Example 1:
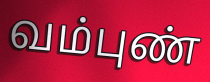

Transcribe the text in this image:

வம்புண்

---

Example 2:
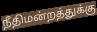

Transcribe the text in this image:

நீதிமன்றத்துக்கு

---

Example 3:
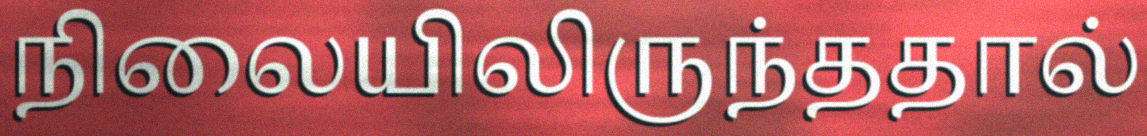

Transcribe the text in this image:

நிலையிலிருந்ததால்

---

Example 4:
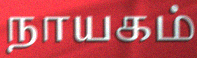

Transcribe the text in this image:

நாயகம்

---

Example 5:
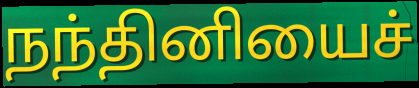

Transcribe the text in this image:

நந்தினியைச்